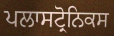
ਪਲਾਸਟ੍ਰੋਨਿਕਸ